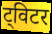
ट्विटर